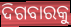
ଦିଗବାରକୁ